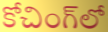
కోచింగ్‌లో